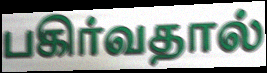
பகிர்வதால்